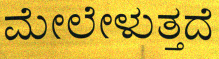
ಮೇಲೇಳುತ್ತದೆ